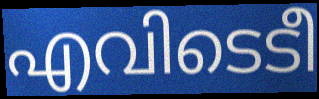
എവിടെടീ